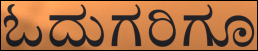
ಓದುಗರಿಗೂ